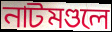
নাটমণ্ডলে